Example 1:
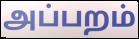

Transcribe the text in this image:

அப்பறம்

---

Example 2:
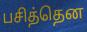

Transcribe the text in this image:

பசித்தென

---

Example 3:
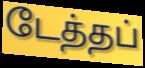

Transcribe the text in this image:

டேத்தப்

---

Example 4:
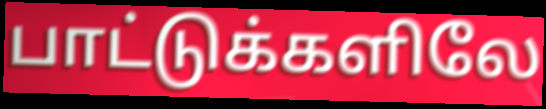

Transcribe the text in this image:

பாட்டுக்களிலே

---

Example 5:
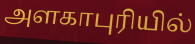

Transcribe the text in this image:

அளகாபுரியில்